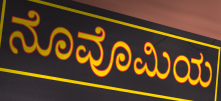
ನೊವೊಮಿಯ